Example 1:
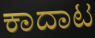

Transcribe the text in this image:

ಕಾದಾಟ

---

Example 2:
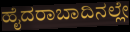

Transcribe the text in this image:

ಹೈದರಾಬಾದಿನಲ್ಲೇ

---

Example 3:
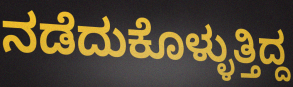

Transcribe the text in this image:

ನಡೆದುಕೊಳ್ಳುತ್ತಿದ್ದ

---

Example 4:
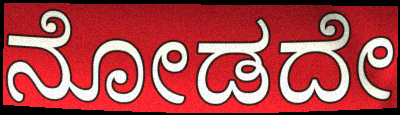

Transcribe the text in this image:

ನೋಡದೇ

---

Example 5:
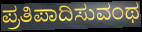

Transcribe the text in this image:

ಪ್ರತಿಪಾದಿಸುವಂಥ